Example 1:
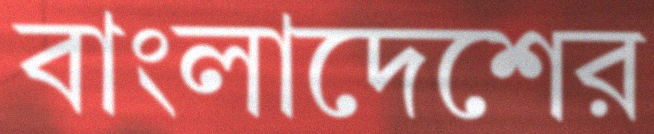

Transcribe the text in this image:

বাংলাদেশের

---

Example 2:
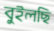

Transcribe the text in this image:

বুইলছি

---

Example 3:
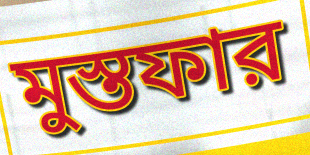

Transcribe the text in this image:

মুস্তফার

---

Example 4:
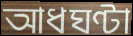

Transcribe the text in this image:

আধঘণ্টা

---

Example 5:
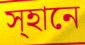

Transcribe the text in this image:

স্হানে